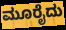
ಮೂರೈದು